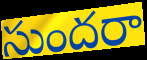
సుందరా